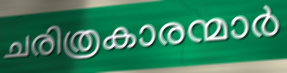
ചരിത്രകാരന്മാർ